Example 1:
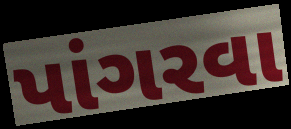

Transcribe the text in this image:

પાંગરવા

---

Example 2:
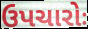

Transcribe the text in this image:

ઉપચારોઃ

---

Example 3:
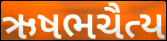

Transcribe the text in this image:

ઋષભચૈત્ય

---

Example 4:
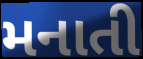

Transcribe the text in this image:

મનાતી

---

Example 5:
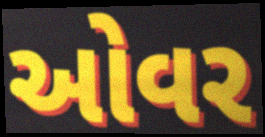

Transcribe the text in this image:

ઓવર